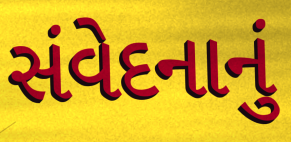
સંવેદનાનું